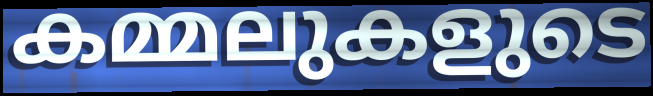
കമ്മലുകളുടെ